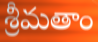
శ్రీమతాం